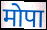
मोपा